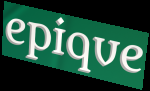
epique